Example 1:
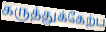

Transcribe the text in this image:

கருத்துக்கேற்ப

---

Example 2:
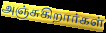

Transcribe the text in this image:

அஞ்சுகிறார்கள்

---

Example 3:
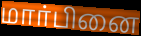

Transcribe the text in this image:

மார்பினை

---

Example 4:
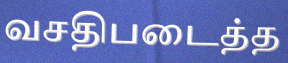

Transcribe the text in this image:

வசதிபடைத்த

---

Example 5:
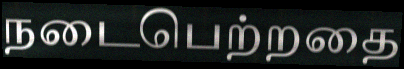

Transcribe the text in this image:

நடைபெற்றதை